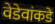
वेडेवांकडे